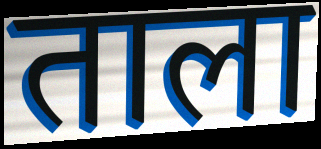
ताला